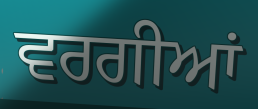
ਵਰਗੀਆਂ